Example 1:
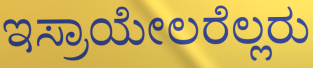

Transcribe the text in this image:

ಇಸ್ರಾಯೇಲರೆಲ್ಲರು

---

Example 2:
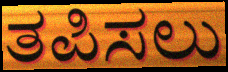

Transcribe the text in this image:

ತಪಿಸಲು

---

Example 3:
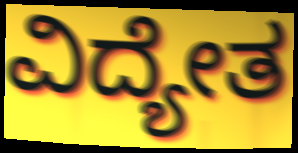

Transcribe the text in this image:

ವಿದ್ಯೇತ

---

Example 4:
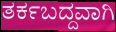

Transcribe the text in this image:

ತರ್ಕಬದ್ದವಾಗಿ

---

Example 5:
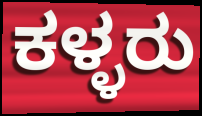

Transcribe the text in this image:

ಕಳ್ಳರು